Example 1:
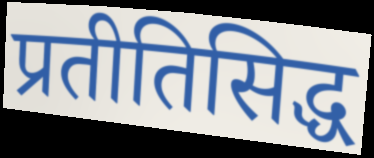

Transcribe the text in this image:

प्रतीतिसिद्ध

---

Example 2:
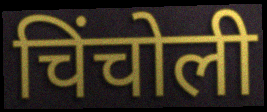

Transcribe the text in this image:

चिंचोली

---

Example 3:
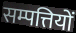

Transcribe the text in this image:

सम्‍पत्तियों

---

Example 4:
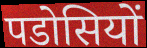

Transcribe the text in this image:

पडोसियों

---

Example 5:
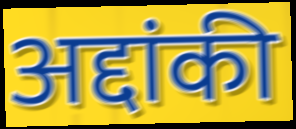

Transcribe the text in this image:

अद्दांकी